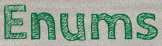
Enums